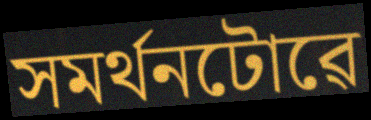
সমৰ্থনটোৱে